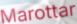
Marottar